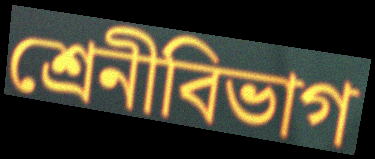
শ্রেনীবিভাগ